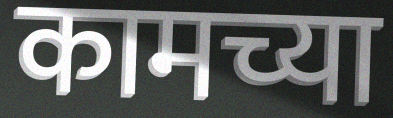
कामच्या